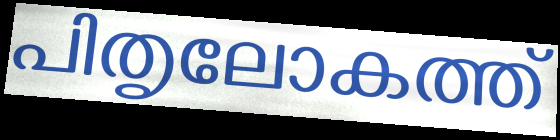
പിതൃലോകത്ത്